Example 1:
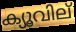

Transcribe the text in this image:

ക്യൂവില്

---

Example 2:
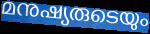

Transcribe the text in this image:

മനുഷ്യരുടെയും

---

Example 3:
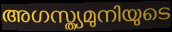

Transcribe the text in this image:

അഗസ്ത്യമുനിയുടെ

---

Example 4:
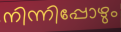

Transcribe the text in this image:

നിന്നിപ്പോഴും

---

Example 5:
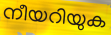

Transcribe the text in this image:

നീയറിയുക